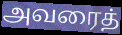
அவரைத்